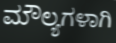
ಮೌಲ್ಯಗಳಾಗಿ